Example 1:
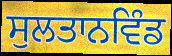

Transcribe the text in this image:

ਸੁਲਤਾਨਵਿੰਡ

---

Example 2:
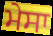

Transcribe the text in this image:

ਮੇਸਾ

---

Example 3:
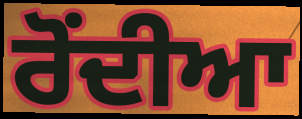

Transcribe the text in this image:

ਰੋਂਦੀਆ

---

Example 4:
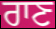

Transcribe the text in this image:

ਰਾਣ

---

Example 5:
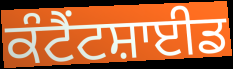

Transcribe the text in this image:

ਕੰਟੈਂਟਸ਼ਾਈਡ